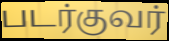
படர்குவர்